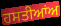
ਹਸਤੀਆਂਅ